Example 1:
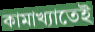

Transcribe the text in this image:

কামাখ্যাতেই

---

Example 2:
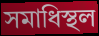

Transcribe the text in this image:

সমাধিস্থল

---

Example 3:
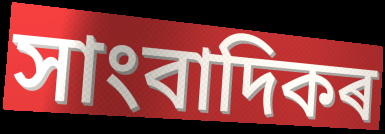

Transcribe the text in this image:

সাংবাদিকৰ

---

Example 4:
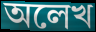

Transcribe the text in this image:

অলেখ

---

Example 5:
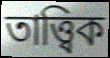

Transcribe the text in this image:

তাত্ত্বিক